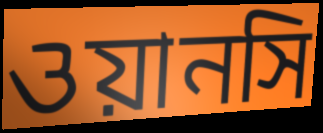
ওয়ানসি